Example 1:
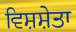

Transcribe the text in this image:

ਵਿਸ਼ਸ਼ੇਤਾ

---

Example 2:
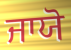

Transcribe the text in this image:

ਜਾਯੋ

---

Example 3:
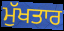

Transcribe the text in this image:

ਮੁੱਖਤਾਰ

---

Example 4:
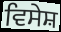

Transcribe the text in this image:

ਵਿਸੇਸ਼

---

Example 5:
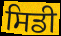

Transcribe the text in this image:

ਸਿਡੀ